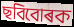
ছবিবোৰক